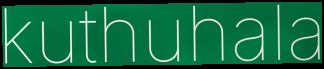
kuthuhala